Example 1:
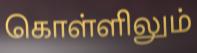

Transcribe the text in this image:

கொள்ளிலும்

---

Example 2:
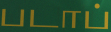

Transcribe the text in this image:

படாப்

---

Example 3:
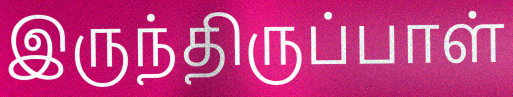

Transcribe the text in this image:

இருந்திருப்பாள்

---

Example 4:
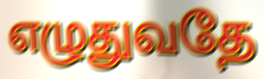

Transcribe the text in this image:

எழுதுவதே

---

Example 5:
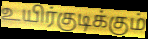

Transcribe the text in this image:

உயிர்குடிக்கும்